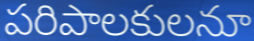
పరిపాలకులనూ